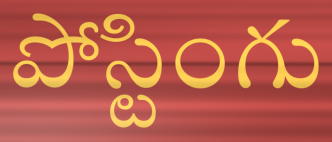
పోస్టింగు